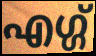
എഗ്ഗ്